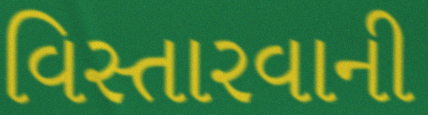
વિસ્તારવાની